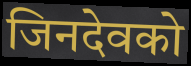
जिनदेवको